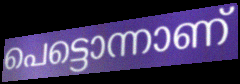
പെട്ടൊന്നാണ്